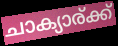
ചാക്യാര്ക്ക്